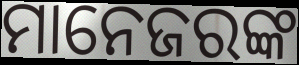
ମାନେଜରଙ୍କ